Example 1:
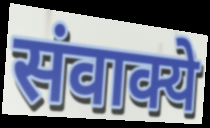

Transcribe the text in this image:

संवाक्ये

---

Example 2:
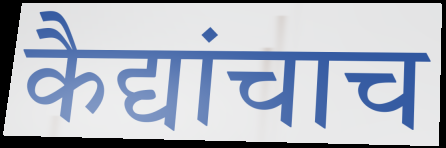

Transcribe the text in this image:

कैद्यांचाच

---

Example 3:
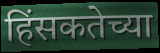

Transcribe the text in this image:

हिंसकतेच्या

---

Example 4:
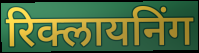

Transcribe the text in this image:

रिक्लायनिंग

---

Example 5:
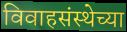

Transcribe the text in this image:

विवाहसंस्थेच्या